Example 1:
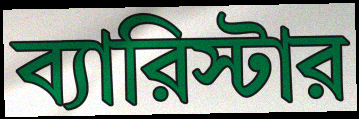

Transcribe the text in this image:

ব্যারিস্টার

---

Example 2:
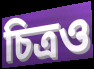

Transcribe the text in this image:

চিত্রও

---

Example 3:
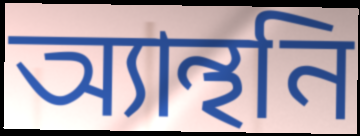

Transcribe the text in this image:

অ্যান্থনি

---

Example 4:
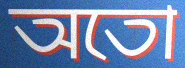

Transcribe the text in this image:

অতো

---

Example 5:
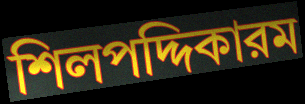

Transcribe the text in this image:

শিলপদ্দিকারম